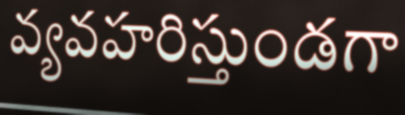
వ్యవహరిస్తుండగా